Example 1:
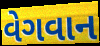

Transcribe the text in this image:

વેગવાન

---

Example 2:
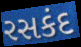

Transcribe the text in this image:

રસકંદ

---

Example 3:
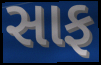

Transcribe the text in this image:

સાફ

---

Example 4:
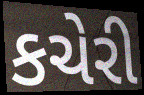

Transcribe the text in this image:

કચેરી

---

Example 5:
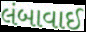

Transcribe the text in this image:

લંબાવાઈ